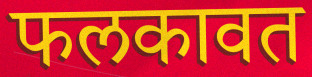
फलकावत